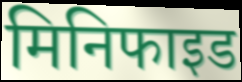
मिनिफाइड